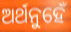
ଅର୍ଥନୁହେଁ